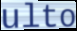
ulto